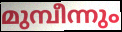
മുമ്പീന്നും